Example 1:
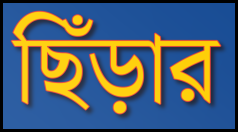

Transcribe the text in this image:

ছিঁড়ার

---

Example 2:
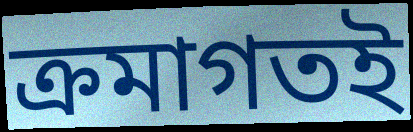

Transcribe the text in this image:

ক্রমাগতই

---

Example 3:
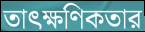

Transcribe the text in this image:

তাৎক্ষণিকতার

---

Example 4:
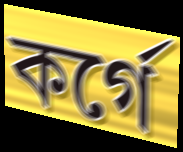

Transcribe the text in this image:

কর্গে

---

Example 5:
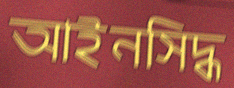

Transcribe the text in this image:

আইনসিদ্ধ